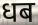
धब